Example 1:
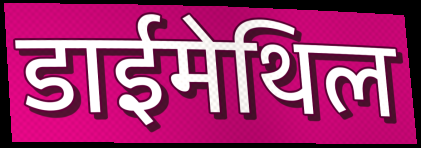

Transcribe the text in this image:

डाईमेथिल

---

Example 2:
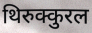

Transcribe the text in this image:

थिरुक्कुरल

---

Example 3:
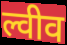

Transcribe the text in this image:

ल्वीव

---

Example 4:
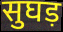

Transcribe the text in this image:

सुघड़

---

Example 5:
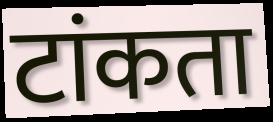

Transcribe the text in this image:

टांकता